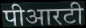
पीआरटी